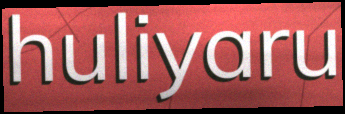
huliyaru